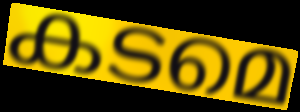
കടമെ